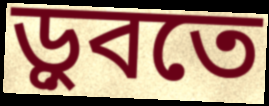
ড়ুবতে